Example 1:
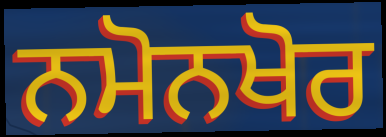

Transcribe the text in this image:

ਨਮੋਨਖੋਰ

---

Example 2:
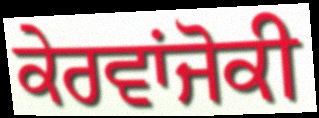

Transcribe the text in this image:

ਕੇਰਵਾਂਜੋਕੀ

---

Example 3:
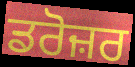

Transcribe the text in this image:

ਡਰੋਜ਼ਰ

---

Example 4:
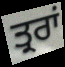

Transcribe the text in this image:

ਤ੍ਰਰਾਂ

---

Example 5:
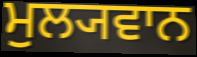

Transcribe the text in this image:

ਮੁਲ੍ਯਵਾਨ